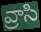
వ్రాసి